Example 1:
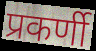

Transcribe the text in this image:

प्रकर्णी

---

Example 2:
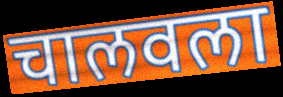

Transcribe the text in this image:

चालवला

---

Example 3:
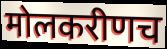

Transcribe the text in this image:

मोलकरीणच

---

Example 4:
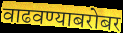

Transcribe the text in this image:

वाढवण्याबरोबर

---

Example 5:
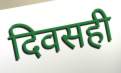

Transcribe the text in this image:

दिवसही